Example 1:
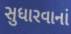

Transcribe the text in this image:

સુધારવાનાં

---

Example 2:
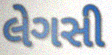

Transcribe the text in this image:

લેગસી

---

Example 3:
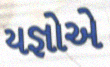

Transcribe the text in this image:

યજ્ઞોએ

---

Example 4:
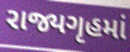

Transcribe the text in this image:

રાજ્યગૃહમાં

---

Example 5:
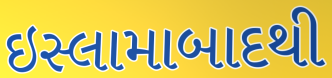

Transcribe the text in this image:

ઇસ્લામાબાદથી